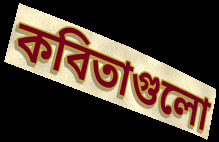
কবিতাগুলো